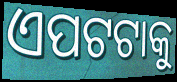
ଏପଟଟାକୁ